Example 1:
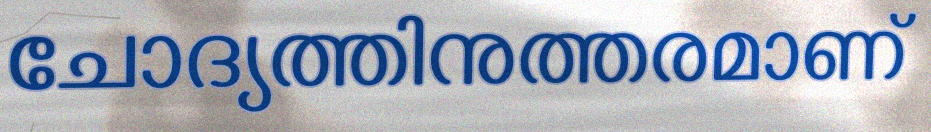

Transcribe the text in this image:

ചോദ്യത്തിനുത്തരമാണ്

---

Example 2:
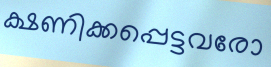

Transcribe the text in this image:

ക്ഷണിക്കപ്പെട്ടവരോ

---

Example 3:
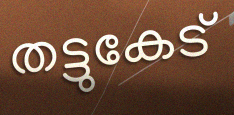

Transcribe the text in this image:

തട്ടുകേട്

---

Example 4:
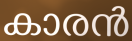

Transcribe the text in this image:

കാരൻ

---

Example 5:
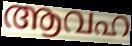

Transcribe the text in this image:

ആവഹ